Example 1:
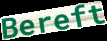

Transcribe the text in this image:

Bereft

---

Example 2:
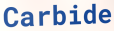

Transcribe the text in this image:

Carbide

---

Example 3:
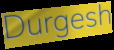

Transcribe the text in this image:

Durgesh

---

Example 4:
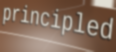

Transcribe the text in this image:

principled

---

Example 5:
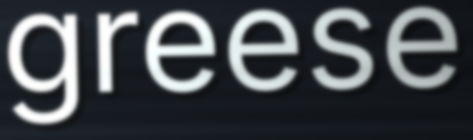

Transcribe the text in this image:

greese